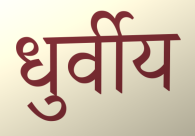
धुर्वीय